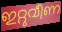
ഇറ്റുവീണ